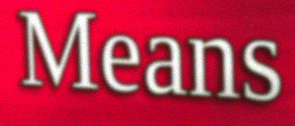
Means